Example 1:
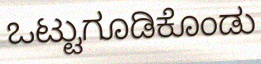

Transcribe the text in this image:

ಒಟ್ಟುಗೂಡಿಕೊಂಡು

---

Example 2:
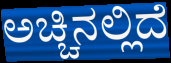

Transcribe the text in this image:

ಅಚ್ಚಿನಲ್ಲಿದೆ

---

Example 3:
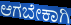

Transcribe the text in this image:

ಆಗಬೇಕಾಗಿ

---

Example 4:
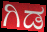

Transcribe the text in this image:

ಗಿಡ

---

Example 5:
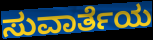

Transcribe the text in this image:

ಸುವಾರ್ತೆಯ